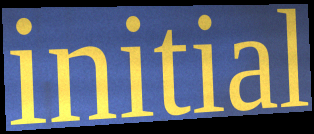
initial